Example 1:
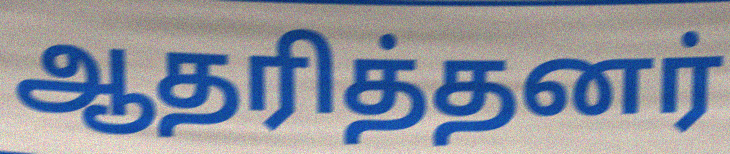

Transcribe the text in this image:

ஆதரித்தனர்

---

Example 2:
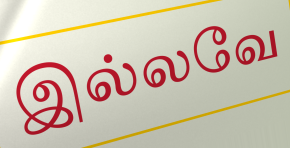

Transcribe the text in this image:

இல்லவே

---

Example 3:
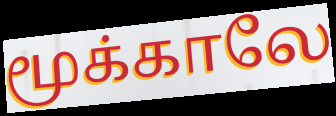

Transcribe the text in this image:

மூக்காலே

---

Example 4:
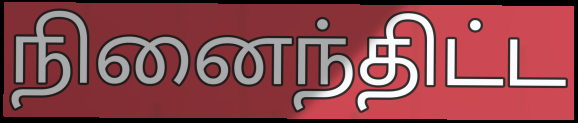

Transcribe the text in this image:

நினைந்திட்ட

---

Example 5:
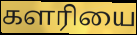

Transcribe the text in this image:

களரியை